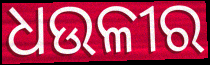
ଧଉଳୀର